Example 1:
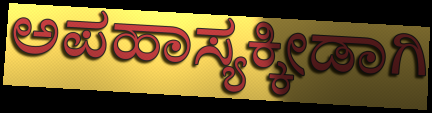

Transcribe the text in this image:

ಅಪಹಾಸ್ಯಕ್ಕೀಡಾಗಿ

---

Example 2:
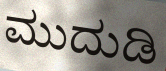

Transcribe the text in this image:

ಮುದುಡಿ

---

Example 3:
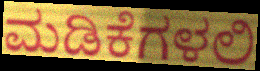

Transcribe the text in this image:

ಮಡಿಕೆಗಳಲಿ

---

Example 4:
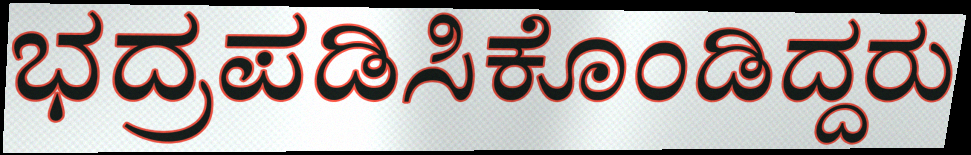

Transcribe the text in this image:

ಭದ್ರಪಡಿಸಿಕೊಂಡಿದ್ದರು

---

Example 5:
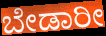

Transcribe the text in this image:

ಬೇಡಾರೀ